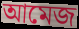
আমেজ